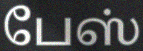
பேஸ்